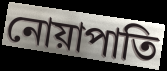
নোয়াপাতি